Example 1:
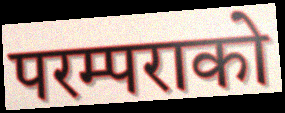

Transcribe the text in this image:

परम्पराको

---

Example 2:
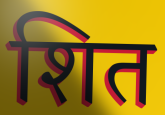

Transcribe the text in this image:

शित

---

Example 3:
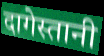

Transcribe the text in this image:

दागेस्तानी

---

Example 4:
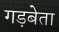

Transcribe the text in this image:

गड़बेता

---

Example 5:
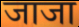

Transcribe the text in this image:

जाजा